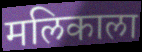
मलिकाला